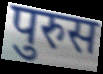
पुरुस